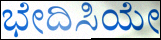
ಭೇದಿಸಿಯೇ